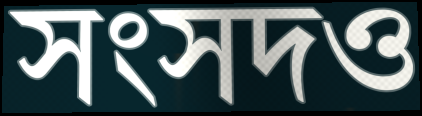
সংসদও